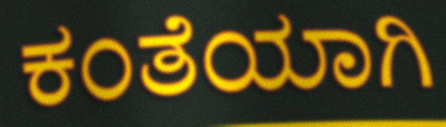
ಕಂತೆಯಾಗಿ